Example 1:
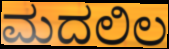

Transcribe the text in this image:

ಮದಲಿಲ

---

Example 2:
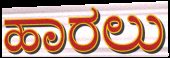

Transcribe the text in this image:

ಹಾರಲು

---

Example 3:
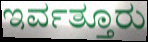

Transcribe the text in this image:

ಇರ್ವತ್ತೂರು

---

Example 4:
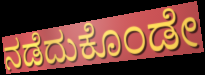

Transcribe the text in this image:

ನಡೆದುಕೊಂಡೇ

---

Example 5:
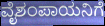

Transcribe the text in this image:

ವೈಶಂಪಾಯನಿಗೆ